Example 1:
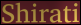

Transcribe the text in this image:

Shirati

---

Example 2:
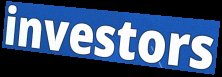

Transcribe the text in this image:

investors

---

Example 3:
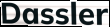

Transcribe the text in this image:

Dassler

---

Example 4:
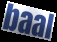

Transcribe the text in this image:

baal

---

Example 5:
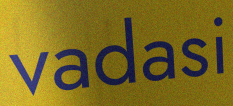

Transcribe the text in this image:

vadasi